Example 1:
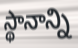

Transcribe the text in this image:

స్థానాన్ని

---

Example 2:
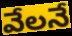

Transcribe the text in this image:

వేలనే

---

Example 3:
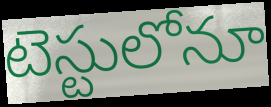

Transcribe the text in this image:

టెస్టులోనూ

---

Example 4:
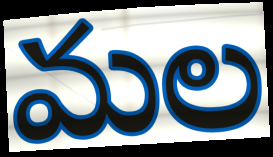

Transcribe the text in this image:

మల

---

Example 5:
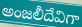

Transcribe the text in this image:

అంజలీదేవిగా